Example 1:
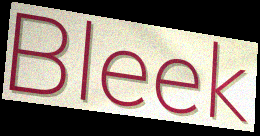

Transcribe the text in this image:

Bleek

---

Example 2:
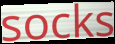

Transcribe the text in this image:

socks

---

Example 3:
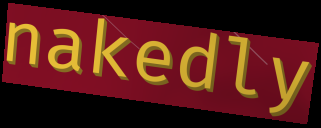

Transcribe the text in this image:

nakedly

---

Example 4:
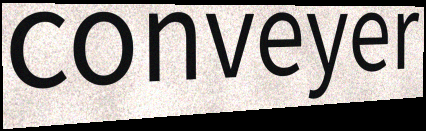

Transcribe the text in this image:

conveyer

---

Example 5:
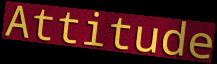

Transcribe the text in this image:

Attitude